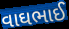
વાઘભાઈ